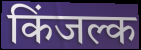
किंजल्क